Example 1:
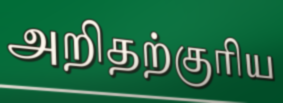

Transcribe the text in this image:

அறிதற்குரிய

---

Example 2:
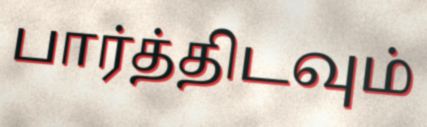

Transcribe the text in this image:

பார்த்திடவும்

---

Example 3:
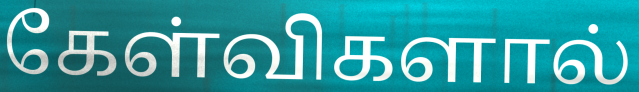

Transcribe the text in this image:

கேள்விகளால்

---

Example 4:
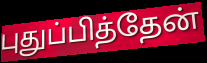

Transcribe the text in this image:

புதுப்பித்தேன்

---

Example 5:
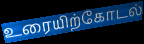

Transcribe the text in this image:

உரையிற்கோடல்